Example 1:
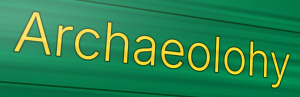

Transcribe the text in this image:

Archaeolohy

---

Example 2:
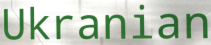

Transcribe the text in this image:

Ukranian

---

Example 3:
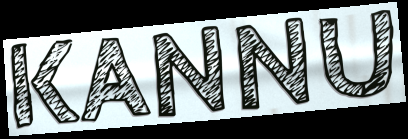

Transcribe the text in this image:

KANNU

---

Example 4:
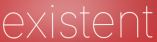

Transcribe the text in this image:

existent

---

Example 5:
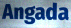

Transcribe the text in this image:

Angada